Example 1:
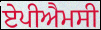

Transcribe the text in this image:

ਏਪੀਐਮਸੀ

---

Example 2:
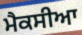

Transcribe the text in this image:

ਮੈਕਸੀਆ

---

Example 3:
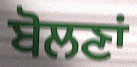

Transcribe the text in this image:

ਬੋਲਣਾਂ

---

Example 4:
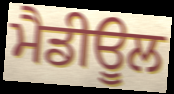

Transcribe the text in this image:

ਮੈਡੀਊਲ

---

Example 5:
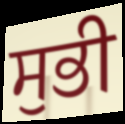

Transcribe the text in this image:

ਸੁਭੀ